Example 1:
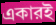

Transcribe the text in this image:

একারই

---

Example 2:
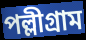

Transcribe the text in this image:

পল্লীগ্রাম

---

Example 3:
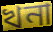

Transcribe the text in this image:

খনা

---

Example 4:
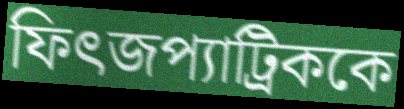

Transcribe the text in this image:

ফিৎজপ্যাট্রিককে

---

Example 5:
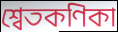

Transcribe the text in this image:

শ্বেতকণিকা